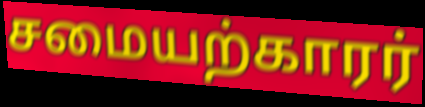
சமையற்காரர்